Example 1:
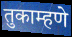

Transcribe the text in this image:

तुकाम्हणे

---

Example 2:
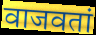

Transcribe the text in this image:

वाजवतां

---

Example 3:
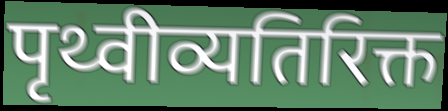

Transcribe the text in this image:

पृथ्वीव्यतिरिक्त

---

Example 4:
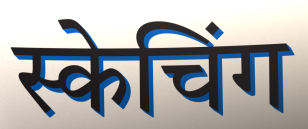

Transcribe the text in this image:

स्केचिंग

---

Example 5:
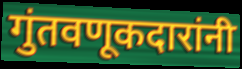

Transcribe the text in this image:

गुंतवणूकदारांनी